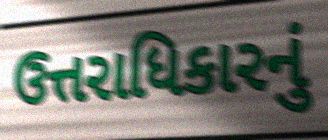
ઉત્તરાધિકારનું